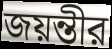
জয়ন্তীর